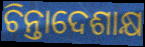
ଚିନ୍ତାଦେଶାକ୍ଷ